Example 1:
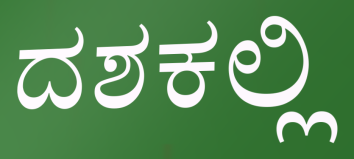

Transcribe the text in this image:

ದಶಕಲ್ಲಿ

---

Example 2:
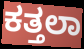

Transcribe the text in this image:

ಕತ್ತಲಾ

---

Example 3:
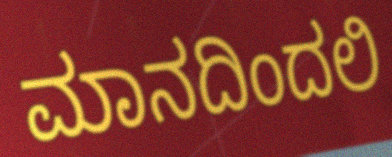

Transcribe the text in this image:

ಮಾನದಿಂದಲಿ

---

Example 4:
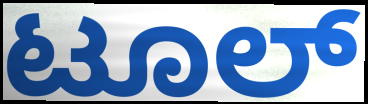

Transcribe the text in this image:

ಟೂಲ್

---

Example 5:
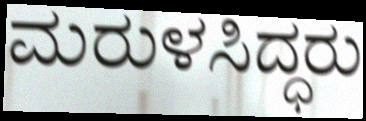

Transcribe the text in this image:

ಮರುಳಸಿದ್ಧರು